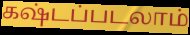
கஷ்டப்படலாம்